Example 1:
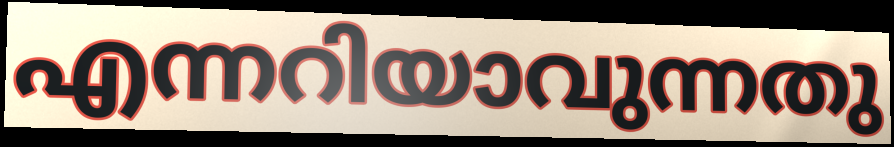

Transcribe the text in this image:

എന്നറിയാവുന്നതു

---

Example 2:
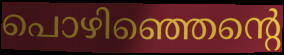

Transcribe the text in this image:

പൊഴിഞ്ഞെന്റെ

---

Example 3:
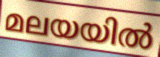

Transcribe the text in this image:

മലയയിൽ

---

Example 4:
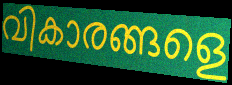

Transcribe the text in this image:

വികാരങ്ങളെ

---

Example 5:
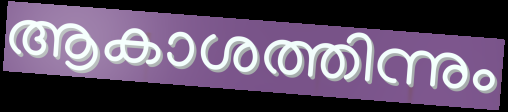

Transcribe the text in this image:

ആകാശത്തിന്നും